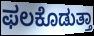
ಫಲಕೊಡುತ್ತಾ